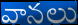
వానలు